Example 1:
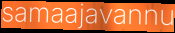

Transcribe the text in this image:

samaajavannu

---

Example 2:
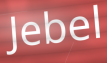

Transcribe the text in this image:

Jebel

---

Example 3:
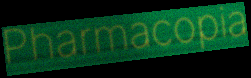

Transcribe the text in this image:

Pharmacopia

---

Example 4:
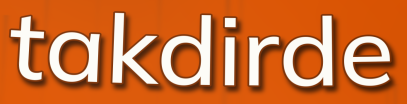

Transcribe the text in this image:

takdirde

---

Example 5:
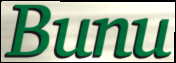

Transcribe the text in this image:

Bunu